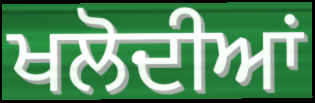
ਖਲੋਦੀਆਂ